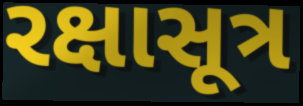
રક્ષાસૂત્ર